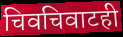
चिवचिवाटही